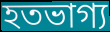
হতভাগ্য